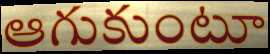
ఆగుకుంటూ